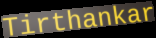
Tirthankar